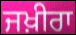
ਜਖ਼ੀਰਾ